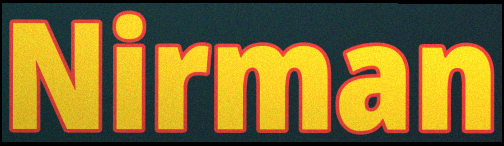
Nirman